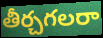
తీర్చగలరా